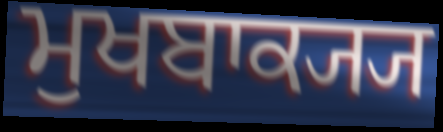
ਮੁਖਬਾਕ੍ਯ੍ਯ